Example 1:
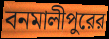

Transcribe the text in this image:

বনমালীপুরের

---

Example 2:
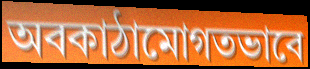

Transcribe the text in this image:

অবকাঠামোগতভাবে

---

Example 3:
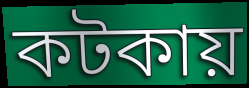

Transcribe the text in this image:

কটকায়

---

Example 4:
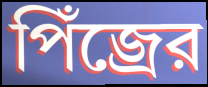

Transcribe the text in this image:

পিঁজ্রের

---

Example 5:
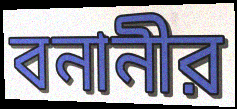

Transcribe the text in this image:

বনানীর